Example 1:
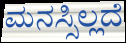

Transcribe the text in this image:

ಮನಸ್ಸಿಲ್ಲದೆ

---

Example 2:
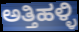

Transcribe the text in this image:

ಅತ್ತಿಹಳ್ಳಿ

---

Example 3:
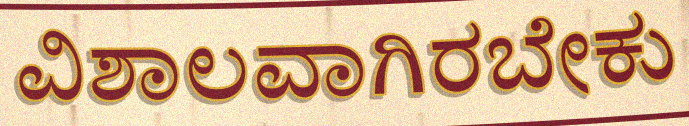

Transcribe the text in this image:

ವಿಶಾಲವಾಗಿರಬೇಕು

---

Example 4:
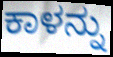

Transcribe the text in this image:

ಕಾಳನ್ನು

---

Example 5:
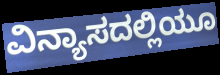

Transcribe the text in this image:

ವಿನ್ಯಾಸದಲ್ಲಿಯೂ